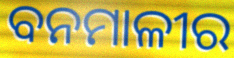
ବନମାଳୀର